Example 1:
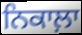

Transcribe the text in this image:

ਨਿਕਾਲ਼ਾ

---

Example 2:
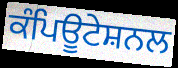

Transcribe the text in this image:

ਕੰਪਿਊਟੇਸ਼ਨਲ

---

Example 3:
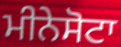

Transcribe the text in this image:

ਮੀਨੇਸੋਟਾ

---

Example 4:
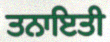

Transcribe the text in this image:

ਤਨਾਇਤੀ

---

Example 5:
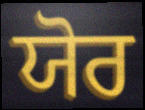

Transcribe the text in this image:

ਯੋਰ